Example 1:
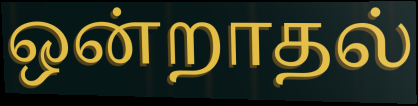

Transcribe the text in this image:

ஒன்றாதல்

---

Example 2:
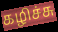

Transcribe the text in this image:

கழிச்சு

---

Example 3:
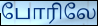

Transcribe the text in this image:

போரிலே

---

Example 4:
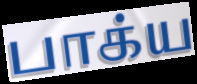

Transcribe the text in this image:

பாக்ய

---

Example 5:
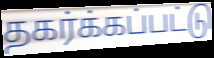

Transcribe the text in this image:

தகர்க்கப்பட்டு